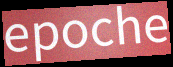
epoche